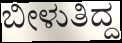
ಬೀಳುತಿದ್ದ